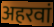
अहरवां